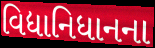
વિદ્યાનિધાનના